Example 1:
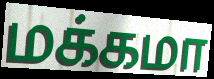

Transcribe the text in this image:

மக்கமா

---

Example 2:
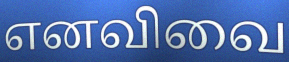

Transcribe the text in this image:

எனவிவை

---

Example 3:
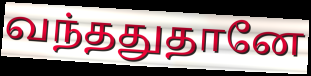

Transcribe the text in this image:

வந்ததுதானே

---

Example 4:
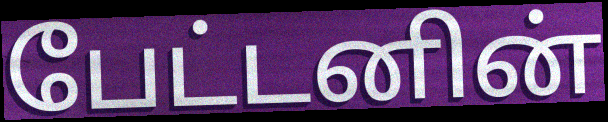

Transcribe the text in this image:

பேட்டனின்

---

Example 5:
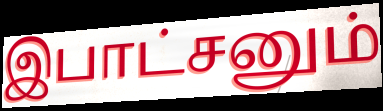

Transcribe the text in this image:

இபாட்சனும்